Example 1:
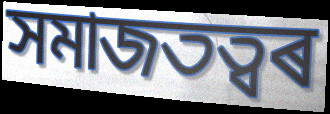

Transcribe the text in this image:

সমাজতত্বৰ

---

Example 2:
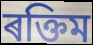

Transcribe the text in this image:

ৰক্তিম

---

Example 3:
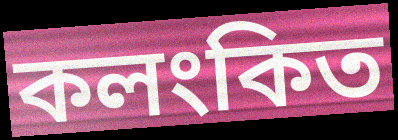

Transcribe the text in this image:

কলংকিত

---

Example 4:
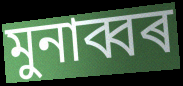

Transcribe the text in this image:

মুনাব্বৰ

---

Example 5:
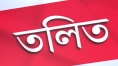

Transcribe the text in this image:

তলিত